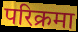
परिक्रमा